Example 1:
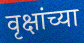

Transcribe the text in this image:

वृक्षांच्या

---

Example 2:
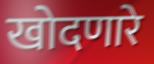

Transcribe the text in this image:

खोदणारे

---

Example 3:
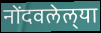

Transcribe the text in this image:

नोंदवलेल्या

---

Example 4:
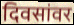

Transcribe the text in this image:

दिवसांवर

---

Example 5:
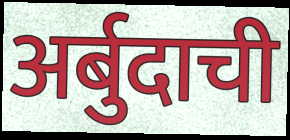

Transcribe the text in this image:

अर्बुदाची